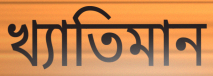
খ্যাতিমান